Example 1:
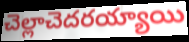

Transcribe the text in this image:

చెల్లాచెదరయ్యాయి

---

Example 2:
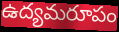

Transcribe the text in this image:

ఉద్యమరూపం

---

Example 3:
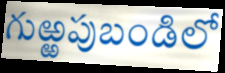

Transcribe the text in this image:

గుఱ్ఱపుబండిలో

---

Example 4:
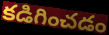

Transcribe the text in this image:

కడిగించడం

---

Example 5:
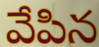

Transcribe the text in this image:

వేపిన